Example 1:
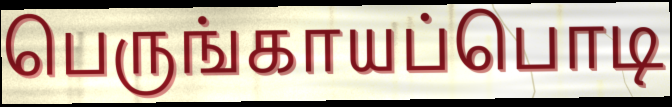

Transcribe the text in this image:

பெருங்காயப்பொடி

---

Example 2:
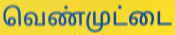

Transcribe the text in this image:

வெண்முட்டை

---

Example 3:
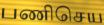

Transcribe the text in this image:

பணிசெய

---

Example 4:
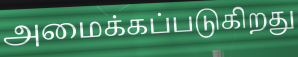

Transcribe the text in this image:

அமைக்கப்படுகிறது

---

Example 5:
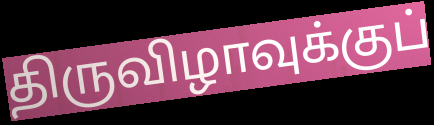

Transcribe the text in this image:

திருவிழாவுக்குப்